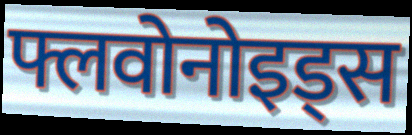
फ्लवोनोइड्स